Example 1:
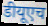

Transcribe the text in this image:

डीयूएच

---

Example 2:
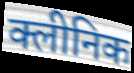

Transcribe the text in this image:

क्‍लीनिक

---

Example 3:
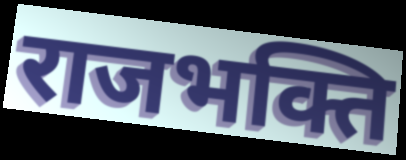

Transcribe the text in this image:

राजभक्ति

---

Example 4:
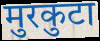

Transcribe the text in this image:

मुरकुटा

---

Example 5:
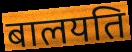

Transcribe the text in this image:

बालयति